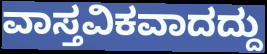
ವಾಸ್ತವಿಕವಾದದ್ದು